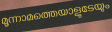
മൂന്നാമത്തെയാളുടേയും